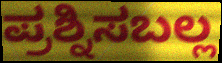
ಪ್ರಶ್ನಿಸಬಲ್ಲ